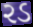
રડ